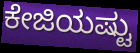
ಕೇಜಿಯಷ್ಟು